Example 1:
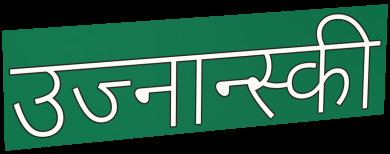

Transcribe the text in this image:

उज्नान्स्की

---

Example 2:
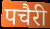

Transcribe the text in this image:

पचैरी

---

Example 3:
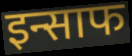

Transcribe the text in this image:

इन्साफ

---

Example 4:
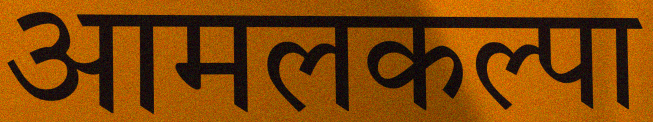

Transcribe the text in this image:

आमलकल्पा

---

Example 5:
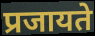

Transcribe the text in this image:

प्रजायते